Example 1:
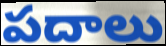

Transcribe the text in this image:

పదాలు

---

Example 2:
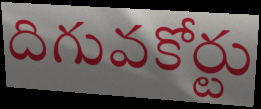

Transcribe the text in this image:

దిగువకోర్టు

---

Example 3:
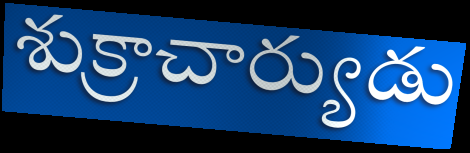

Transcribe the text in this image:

శుక్రాచార్యుడు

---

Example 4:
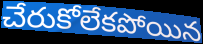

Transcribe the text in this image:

చేరుకోలేకపోయిన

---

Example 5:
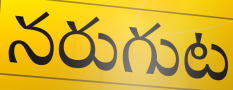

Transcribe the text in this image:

నరుగుట